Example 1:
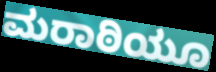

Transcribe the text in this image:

ಮರಾಠಿಯೂ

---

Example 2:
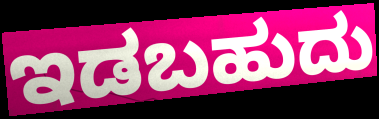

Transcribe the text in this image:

ಇಡಬಹುದು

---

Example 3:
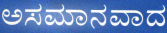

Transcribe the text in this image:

ಅಸಮಾನವಾದ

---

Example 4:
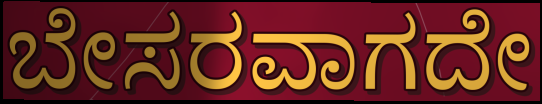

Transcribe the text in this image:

ಬೇಸರವಾಗದೇ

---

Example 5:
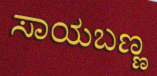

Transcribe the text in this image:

ಸಾಯಬಣ್ಣ